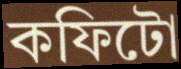
কফিটো